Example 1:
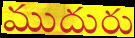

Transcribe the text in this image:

ముదురు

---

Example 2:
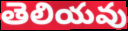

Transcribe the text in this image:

తెలియవు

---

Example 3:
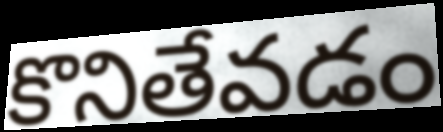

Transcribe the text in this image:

కొనితేవడం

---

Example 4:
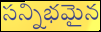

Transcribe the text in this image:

సన్నిభమైన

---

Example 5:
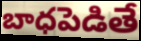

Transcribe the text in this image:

బాధపెడితే